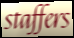
staffers